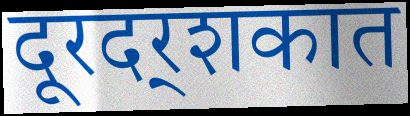
दूरदर्शकात